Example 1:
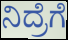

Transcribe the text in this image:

ನಿದ್ರೆಗೆ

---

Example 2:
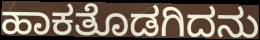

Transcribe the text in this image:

ಹಾಕತೊಡಗಿದನು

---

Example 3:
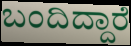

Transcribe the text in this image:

ಬಂದಿದ್ದಾರೆ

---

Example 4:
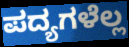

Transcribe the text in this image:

ಪದ್ಯಗಳೆಲ್ಲ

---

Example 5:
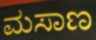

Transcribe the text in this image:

ಮಸಾಣ